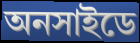
অনসাইডে